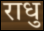
राधु